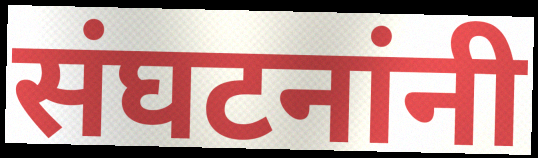
संघटनांनी